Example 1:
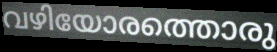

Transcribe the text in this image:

വഴിയോരത്തൊരു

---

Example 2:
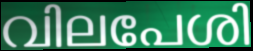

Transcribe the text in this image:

വിലപേശി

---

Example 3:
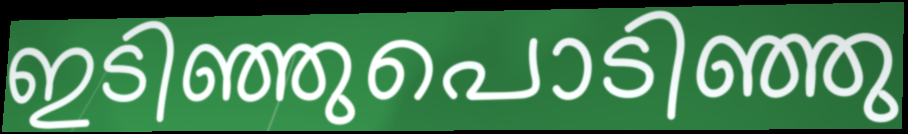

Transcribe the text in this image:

ഇടിഞ്ഞുപൊടിഞ്ഞു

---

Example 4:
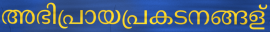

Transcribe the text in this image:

അഭിപ്രായപ്രകടനങ്ങള്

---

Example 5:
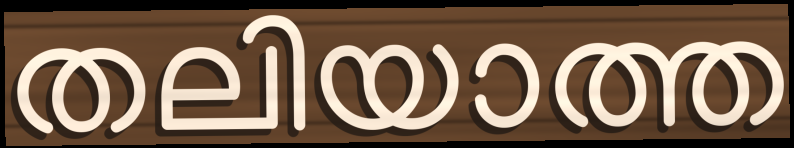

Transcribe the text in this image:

തലിയാത്ത